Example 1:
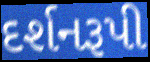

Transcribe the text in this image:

દર્શનરૂપી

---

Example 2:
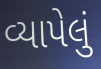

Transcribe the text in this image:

વ્યાપેલું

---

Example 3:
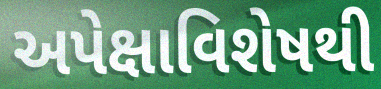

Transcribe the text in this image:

અપેક્ષાવિશેષથી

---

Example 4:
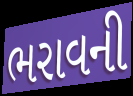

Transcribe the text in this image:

ભરાવની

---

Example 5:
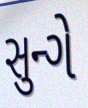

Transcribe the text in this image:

સુન્ગે